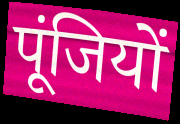
पूंजियों